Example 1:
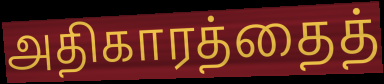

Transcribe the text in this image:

அதிகாரத்தைத்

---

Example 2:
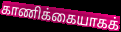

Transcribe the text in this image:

காணிக்கையாகக்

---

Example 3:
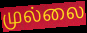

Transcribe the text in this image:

முல்லை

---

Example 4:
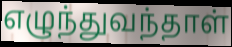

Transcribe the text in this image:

எழுந்துவந்தாள்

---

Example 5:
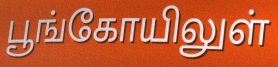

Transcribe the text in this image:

பூங்கோயிலுள்